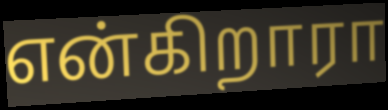
என்கிறாரா